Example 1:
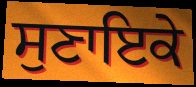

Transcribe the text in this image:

ਸੁਣਾਇਕੇ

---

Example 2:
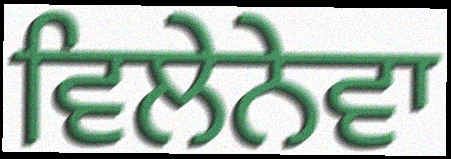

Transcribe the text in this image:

ਵਿਲੇਨੇਵਾ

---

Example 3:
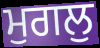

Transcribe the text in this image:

ਮੁਗਲੁ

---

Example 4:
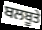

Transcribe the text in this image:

ਬਲਬੂਤੇ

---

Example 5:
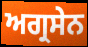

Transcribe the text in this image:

ਅਗ੍ਰਸੇਨ